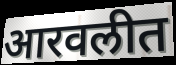
आरवलीत